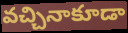
వచ్చినాకూడా